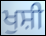
ਖੁਸ਼ੀ